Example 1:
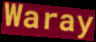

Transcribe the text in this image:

Waray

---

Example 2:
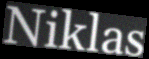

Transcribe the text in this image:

Niklas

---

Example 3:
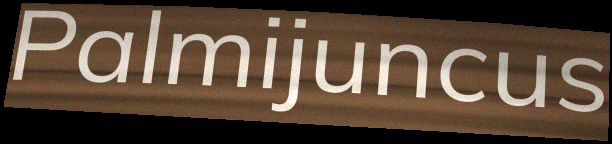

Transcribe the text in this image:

Palmijuncus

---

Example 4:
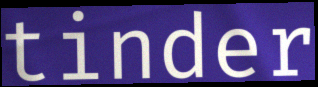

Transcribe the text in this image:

tinder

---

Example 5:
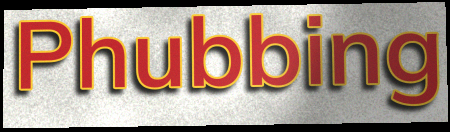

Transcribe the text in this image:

Phubbing